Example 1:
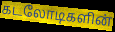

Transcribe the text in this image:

கடலோடிகளின்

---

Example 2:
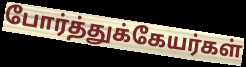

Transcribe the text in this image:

போர்த்துக்கேயர்கள்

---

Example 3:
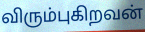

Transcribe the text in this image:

விரும்புகிறவன்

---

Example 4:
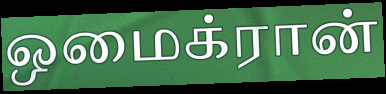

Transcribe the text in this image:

ஒமைக்ரான்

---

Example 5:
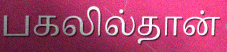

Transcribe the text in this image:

பகலில்தான்